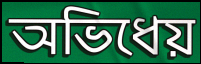
অভিধেয়